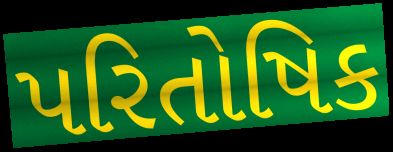
પરિતોષિક